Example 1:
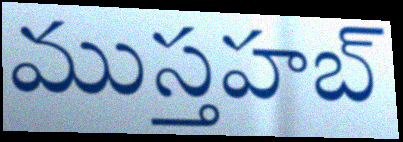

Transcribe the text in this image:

ముస్తహబ్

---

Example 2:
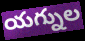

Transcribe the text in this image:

యగ్నుల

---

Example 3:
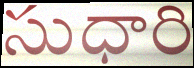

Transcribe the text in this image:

సుధారి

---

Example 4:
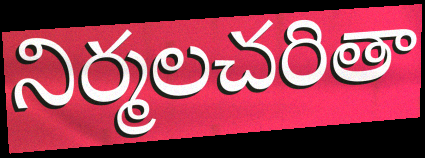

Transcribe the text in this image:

నిర్మలచరితా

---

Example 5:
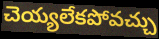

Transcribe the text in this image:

చెయ్యలేకపోవచ్చు